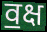
व॒क्ष